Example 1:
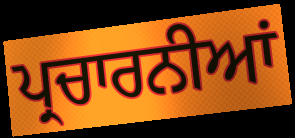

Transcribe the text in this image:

ਪ੍ਰਚਾਰਨੀਆਂ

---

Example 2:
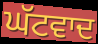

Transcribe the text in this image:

ਘੱਟਵਾਦ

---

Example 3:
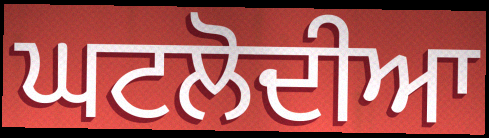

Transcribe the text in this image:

ਘਟਲੋਦੀਆ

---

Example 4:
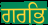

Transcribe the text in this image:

ਗਰਭਿ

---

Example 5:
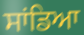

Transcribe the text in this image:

ਸਾਂਡਿਆ